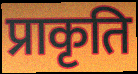
प्राकृति